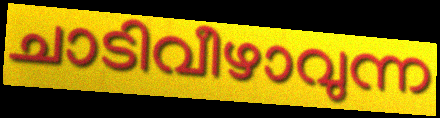
ചാടിവീഴാവുന്ന